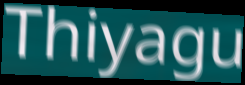
Thiyagu